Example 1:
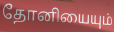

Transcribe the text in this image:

தோனியையும்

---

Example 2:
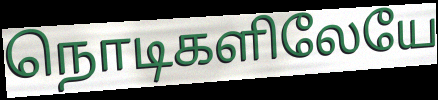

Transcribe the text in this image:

நொடிகளிலேயே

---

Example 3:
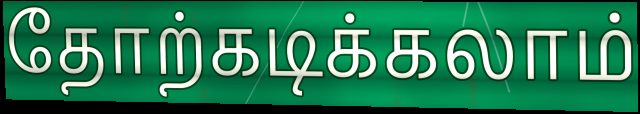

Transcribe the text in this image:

தோற்கடிக்கலாம்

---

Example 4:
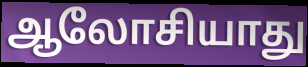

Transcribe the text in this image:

ஆலோசியாது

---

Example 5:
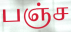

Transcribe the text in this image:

பஞ்ச